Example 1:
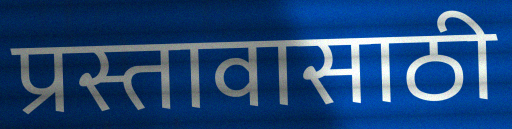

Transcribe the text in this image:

प्रस्तावासाठी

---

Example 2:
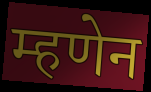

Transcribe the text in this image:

म्हणेन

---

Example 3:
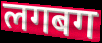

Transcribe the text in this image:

लगबग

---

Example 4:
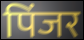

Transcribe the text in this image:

पिंजर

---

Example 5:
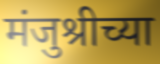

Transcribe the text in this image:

मंजुश्रीच्या